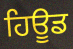
ਹਿਊਡ